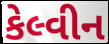
કેલ્વીન